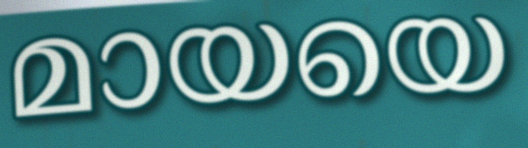
മായയെ